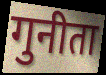
गुनीता